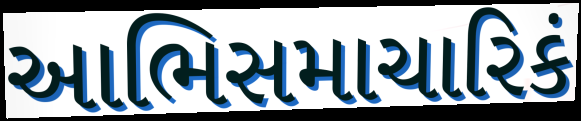
આભિસમાચારિકં